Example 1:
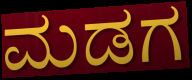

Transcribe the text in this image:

ಮಡಗ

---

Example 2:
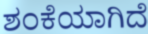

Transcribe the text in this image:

ಶಂಕೆಯಾಗಿದೆ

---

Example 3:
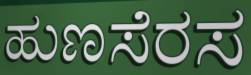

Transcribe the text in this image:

ಹುಣಸೆರಸ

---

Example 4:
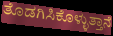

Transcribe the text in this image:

ತೊಡಗಿಸಿಕೊಳ್ಳುತ್ತಾನೆ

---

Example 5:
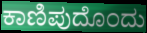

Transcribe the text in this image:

ಕಾಣಿಪುದೊಂದು